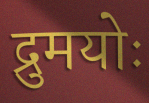
द्रुमयोः